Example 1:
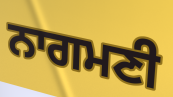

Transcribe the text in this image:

ਨਾਗਮਣੀ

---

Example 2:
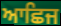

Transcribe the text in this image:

ਆਛਿਜ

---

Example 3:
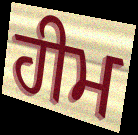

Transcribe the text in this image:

ਹੀਮ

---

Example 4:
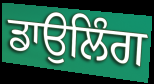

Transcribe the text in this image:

ਡਾਉਲਿੰਗ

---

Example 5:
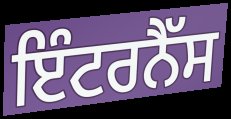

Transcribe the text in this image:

ਇੰਟਰਨੈੱਸ